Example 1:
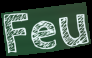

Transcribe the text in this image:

Feu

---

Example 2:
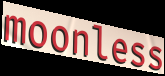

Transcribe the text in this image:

moonless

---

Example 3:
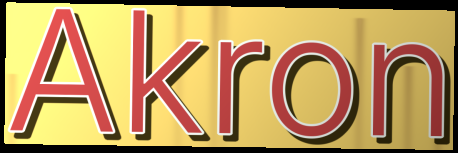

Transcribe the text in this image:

Akron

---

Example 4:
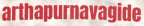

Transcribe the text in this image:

arthapurnavagide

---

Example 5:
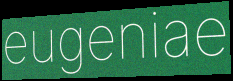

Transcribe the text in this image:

eugeniae